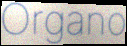
Organo